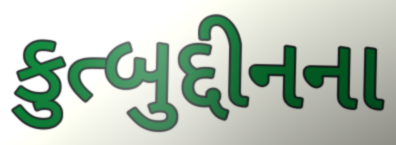
કુત્બુદ્દીનના